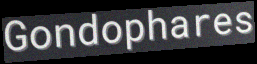
Gondophares